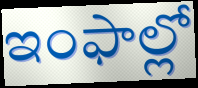
ఇంఫాల్లో